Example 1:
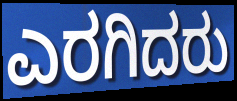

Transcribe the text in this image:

ಎರಗಿದರು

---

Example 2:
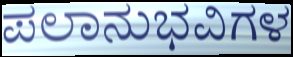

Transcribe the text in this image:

ಪಲಾನುಭವಿಗಳ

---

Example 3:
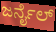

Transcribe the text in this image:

ಜರ್ನೈಲ್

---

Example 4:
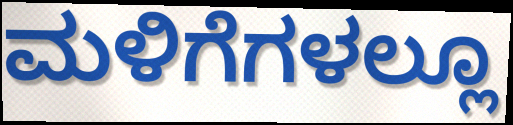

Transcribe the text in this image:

ಮಳಿಗೆಗಳಲ್ಲೂ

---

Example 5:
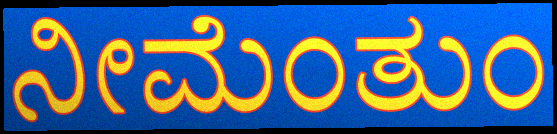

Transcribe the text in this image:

ನೀಮೆಂತುಂ